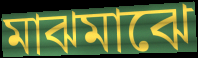
মাঝমাঝে